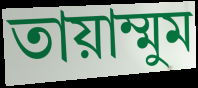
তায়াম্মুম